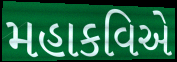
મહાકવિએ